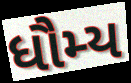
ધૌમ્ય